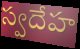
స్వదేహ